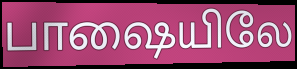
பாஷையிலே